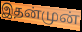
இதன்முன்